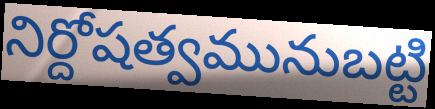
నిర్దోషత్వమునుబట్టి